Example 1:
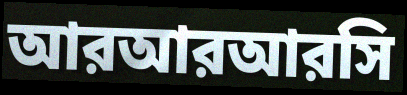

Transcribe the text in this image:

আরআরআরসি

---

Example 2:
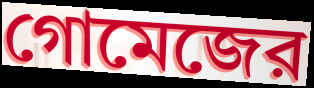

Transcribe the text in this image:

গোমেজের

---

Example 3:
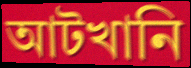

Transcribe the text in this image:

আটখানি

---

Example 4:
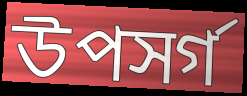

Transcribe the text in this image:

উপসর্গ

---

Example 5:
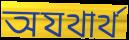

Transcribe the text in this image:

অযথার্থ